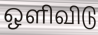
ஒளிவிடு